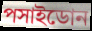
পসাইডোন